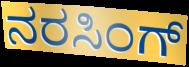
ನರಸಿಂಗ್